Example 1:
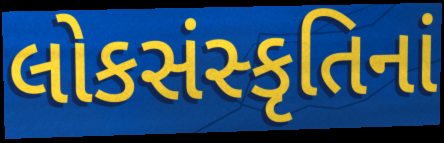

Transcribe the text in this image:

લોકસંસ્કૃતિનાં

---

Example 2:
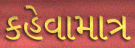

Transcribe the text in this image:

કહેવામાત્ર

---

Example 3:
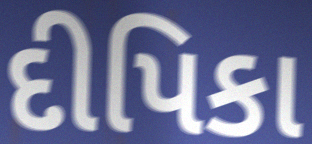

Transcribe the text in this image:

દીપિકા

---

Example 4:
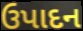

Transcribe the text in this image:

ઉપાદન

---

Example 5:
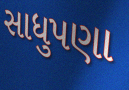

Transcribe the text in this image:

સાધુપણા